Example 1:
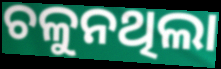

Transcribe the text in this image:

ଚଳୁନଥିଲା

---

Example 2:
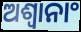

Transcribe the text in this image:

ଅଶ୍ଵାନାଂ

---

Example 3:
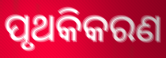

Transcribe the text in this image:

ପୃଥକିକରଣ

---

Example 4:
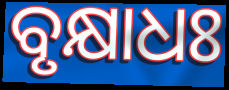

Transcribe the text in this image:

ବୃକ୍ଷାଧଃ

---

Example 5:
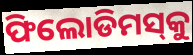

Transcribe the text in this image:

ଫିଲୋଡିମସ୍‌କୁ